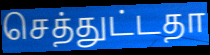
செத்துட்டதா